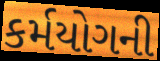
કર્મયોગની